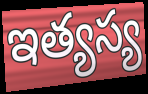
ఇత్యస్య